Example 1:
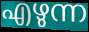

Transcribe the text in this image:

എഴുന്ന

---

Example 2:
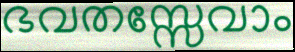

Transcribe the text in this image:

ഭവതസ്സേവാം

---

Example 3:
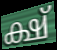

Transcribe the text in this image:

ക്ഷ്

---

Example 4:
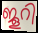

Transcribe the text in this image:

ജൂറി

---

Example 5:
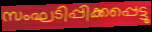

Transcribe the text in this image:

സംഘടിപ്പിക്കപ്പെട്ടു